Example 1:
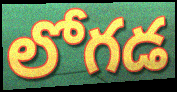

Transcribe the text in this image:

లోగడ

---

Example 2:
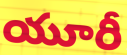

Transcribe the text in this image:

యూరీ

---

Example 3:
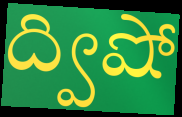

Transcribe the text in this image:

ద్విషో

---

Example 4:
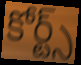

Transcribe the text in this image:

కోర్ట్స్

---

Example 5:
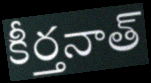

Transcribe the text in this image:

కీర్తనాత్